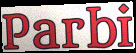
Parbi